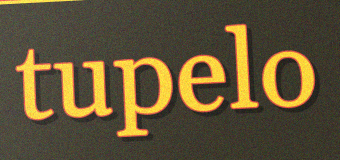
tupelo